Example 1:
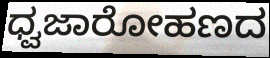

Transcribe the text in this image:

ಧ್ವಜಾರೋಹಣದ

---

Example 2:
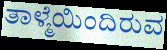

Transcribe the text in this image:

ತಾಳ್ಮೆಯಿಂದಿರುವ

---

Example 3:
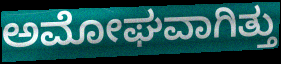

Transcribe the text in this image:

ಅಮೋಘವಾಗಿತ್ತು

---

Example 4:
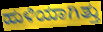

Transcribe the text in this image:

ಹುಳಿಯಾಗಿತ್ತು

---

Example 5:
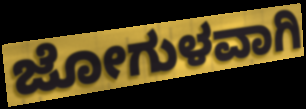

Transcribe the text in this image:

ಜೋಗುಳವಾಗಿ